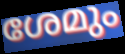
ശേമും